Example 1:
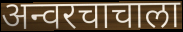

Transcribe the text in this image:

अन्वरचाचाला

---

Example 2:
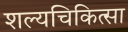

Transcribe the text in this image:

शल्‍यचिकित्‍सा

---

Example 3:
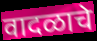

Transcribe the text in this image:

वादळाचे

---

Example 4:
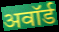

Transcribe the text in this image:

अवॉर्ड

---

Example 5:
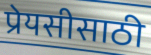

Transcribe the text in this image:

प्रेयसीसाठी